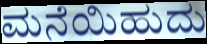
ಮನೆಯಿಹುದು